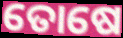
ତୋଷେ